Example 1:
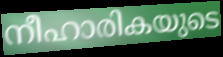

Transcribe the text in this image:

നീഹാരികയുടെ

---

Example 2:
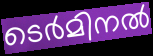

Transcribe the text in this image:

ടെർമിനൽ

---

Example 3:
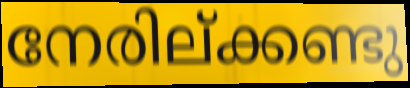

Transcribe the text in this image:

നേരില്ക്കണ്ടു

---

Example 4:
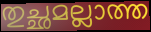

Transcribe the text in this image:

തുച്ഛമല്ലാത്ത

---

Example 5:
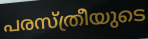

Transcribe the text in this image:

പരസ്ത്രീയുടെ